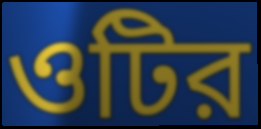
ওটির